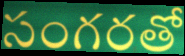
సంగరతో